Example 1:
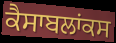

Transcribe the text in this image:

ਕੈਸਾਬਲਾਂਕਸ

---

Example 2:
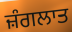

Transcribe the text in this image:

ਜ਼ੰਗਲਾਤ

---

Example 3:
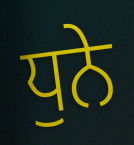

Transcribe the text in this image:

ਧੁਨੇ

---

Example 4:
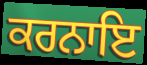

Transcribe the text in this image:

ਕਰਨਾਇ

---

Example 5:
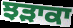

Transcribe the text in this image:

ਝੜਾਕਾ